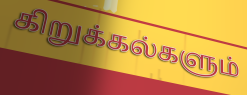
கிறுக்கல்களும்